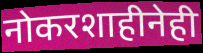
नोकरशाहीनेही